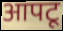
आपटू